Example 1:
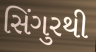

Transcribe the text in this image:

સિંગુરથી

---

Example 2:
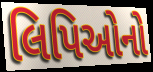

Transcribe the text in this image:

લિપિઓનો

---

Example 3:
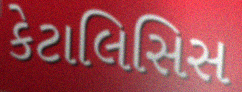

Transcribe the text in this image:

કેટાલિસિસ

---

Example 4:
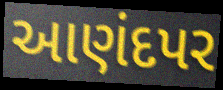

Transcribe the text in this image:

આણંદપર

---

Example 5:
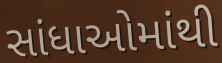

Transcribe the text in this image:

સાંધાઓમાંથી